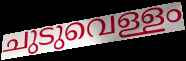
ചുടുവെള്ളം